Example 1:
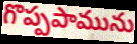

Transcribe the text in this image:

గొప్పపామును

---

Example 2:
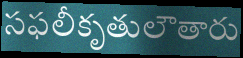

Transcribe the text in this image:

సఫలీకృతులౌతారు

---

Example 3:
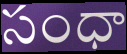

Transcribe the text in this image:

సంధా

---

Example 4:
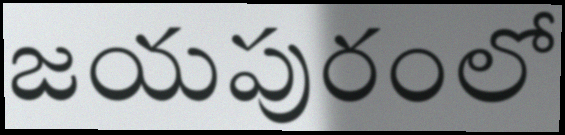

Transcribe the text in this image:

జయపురంలో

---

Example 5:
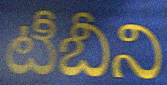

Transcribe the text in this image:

టీబీని